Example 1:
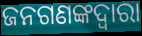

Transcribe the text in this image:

ଜନଗଣଙ୍କଦ୍ୱାରା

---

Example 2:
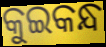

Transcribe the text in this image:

କୁଇକନ୍ଧ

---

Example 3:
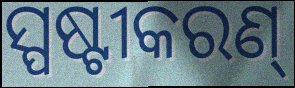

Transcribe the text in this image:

ସ୍ପଷ୍ଟୀକରଣ୍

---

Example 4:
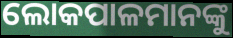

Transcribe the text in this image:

ଲୋକପାଳମାନଙ୍କୁ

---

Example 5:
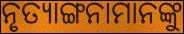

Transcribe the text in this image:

ନୃତ୍ୟାଙ୍ଗନାମାନଙ୍କୁ